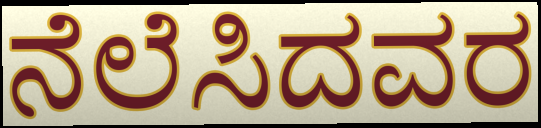
ನೆಲೆಸಿದವರ